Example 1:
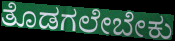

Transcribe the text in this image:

ತೊಡಗಲೇಬೇಕು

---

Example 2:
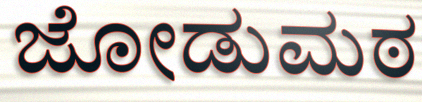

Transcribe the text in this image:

ಜೋಡುಮಠ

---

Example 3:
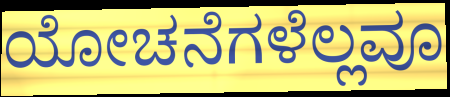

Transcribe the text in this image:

ಯೋಚನೆಗಳೆಲ್ಲವೂ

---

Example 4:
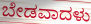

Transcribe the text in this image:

ಬೇಡವಾದಳು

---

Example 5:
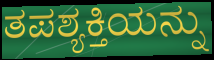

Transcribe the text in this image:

ತಪಶ್ಯಕ್ತಿಯನ್ನು